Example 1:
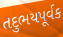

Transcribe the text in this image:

તદુભયપૂર્વક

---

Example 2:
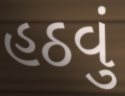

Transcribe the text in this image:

હઠવું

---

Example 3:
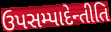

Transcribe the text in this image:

ઉપસમ્પાદેન્તીતિ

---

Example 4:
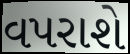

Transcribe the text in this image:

વપરાશે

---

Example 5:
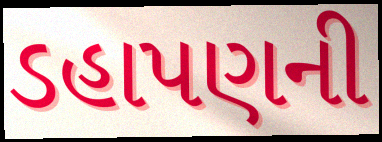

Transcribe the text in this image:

ડહાપણની